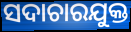
ସଦାଚାରଯୁକ୍ତ